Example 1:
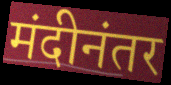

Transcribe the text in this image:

मंदीनंतर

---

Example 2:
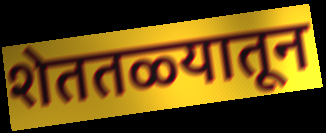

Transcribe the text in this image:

शेततळ्यातून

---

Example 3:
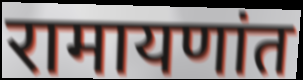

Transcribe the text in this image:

रामायणांत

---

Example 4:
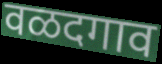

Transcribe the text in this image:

वळदगाव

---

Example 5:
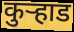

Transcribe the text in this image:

कुर्‍हाड